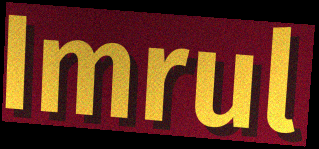
Imrul